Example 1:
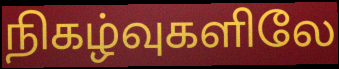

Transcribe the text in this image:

நிகழ்வுகளிலே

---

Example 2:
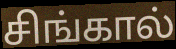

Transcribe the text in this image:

சிங்கால்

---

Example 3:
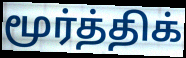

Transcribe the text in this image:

மூர்த்திக்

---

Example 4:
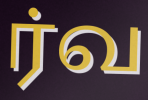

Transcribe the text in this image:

ர்வ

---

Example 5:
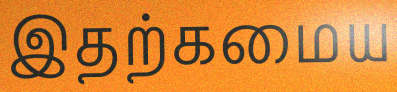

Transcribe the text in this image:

இதற்கமைய